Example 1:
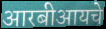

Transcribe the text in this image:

आरबीआयचे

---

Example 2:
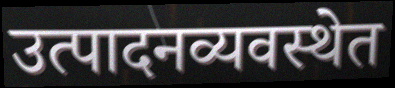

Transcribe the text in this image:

उत्पादनव्यवस्थेत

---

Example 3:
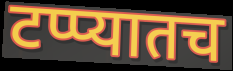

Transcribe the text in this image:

टप्प्यातच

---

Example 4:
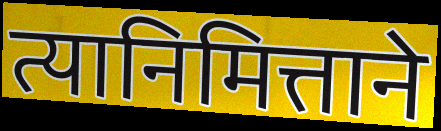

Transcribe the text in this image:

त्यानिमित्ताने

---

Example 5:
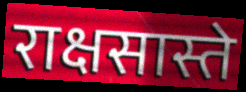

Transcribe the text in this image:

राक्षसास्ते